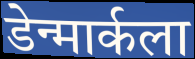
डेन्मार्कला